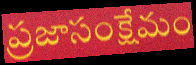
ప్రజాసంక్షేమం